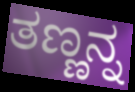
ತಣ್ಣನ್ನ